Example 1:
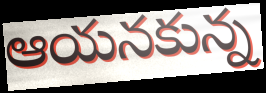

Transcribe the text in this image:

ఆయనకున్న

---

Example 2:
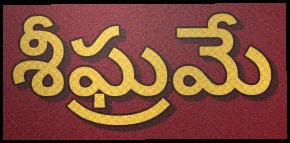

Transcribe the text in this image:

శీఘ్రమే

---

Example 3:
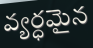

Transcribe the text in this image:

వ్యర్ధమైన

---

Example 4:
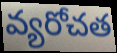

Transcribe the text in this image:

వ్యరోచత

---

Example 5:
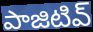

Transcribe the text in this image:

పాజిటివ్